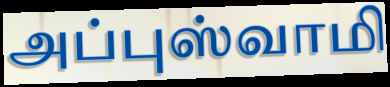
அப்புஸ்வாமி